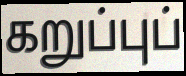
கறுப்புப்